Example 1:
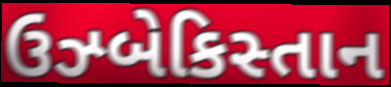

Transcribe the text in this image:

ઉઝ્બેકિસ્તાન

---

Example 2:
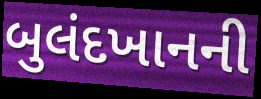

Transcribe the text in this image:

બુલંદખાનની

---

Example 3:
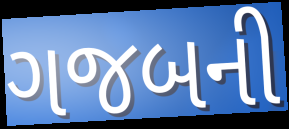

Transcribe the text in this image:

ગજબની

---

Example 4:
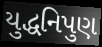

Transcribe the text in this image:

યુદ્ધનિપુણ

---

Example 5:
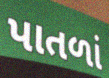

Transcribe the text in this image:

પાતળાં